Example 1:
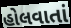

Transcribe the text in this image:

હોલવાતાં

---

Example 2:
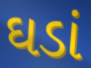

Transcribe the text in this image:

ઘડાં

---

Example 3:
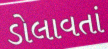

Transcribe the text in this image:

ડોલાવતાં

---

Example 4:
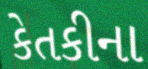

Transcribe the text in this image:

કેતકીના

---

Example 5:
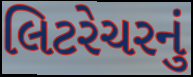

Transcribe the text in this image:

લિટરેચરનું